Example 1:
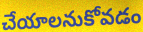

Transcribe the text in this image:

చేయాలనుకోవడం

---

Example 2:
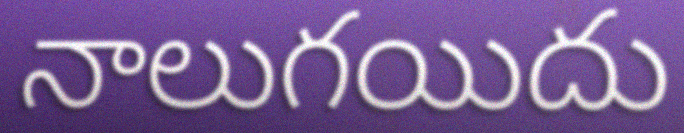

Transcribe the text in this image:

నాలుగయిదు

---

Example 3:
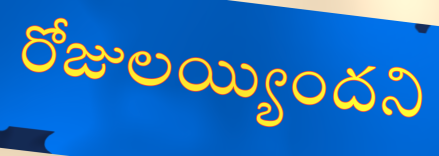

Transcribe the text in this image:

రోజులయ్యిందని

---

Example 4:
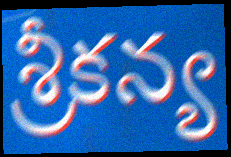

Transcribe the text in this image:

శ్రీకన్య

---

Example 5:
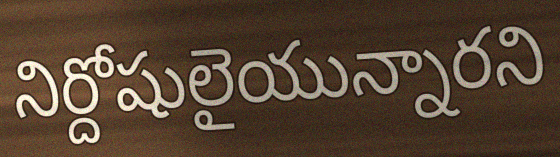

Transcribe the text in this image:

నిర్దోషులైయున్నారని